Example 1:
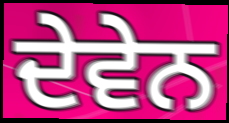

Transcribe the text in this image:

ਦੇਵੇਨ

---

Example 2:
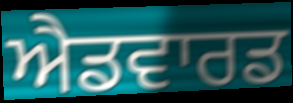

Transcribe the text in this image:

ਐਡਵਾਰਡ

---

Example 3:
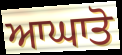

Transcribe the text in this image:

ਆਘਾਤੋ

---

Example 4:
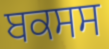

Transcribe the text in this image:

ਬਕਸਸ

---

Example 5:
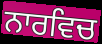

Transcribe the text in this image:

ਨਾਰਵਿਚ